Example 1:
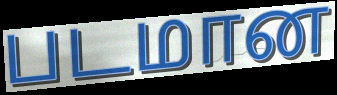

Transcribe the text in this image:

படமான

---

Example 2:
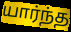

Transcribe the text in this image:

யார்ந்த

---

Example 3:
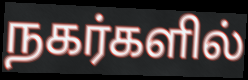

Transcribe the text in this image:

நகர்களில்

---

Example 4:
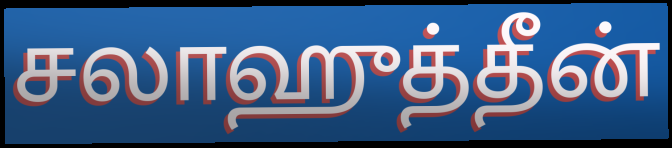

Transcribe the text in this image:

சலாஹுத்தீன்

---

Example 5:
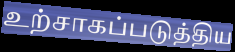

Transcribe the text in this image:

உற்சாகப்படுத்திய